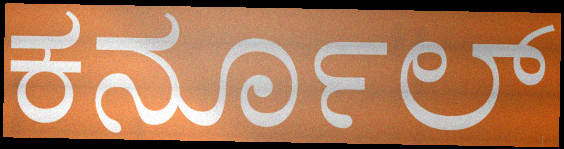
ಕರ್ನೂಲ್